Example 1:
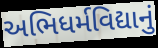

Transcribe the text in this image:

અભિધર્મવિદ્યાનું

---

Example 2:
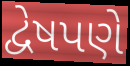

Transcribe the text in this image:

દ્વેષપણે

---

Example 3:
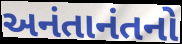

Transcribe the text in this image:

અનંતાનંતનો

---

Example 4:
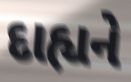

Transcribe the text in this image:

દાહ્યને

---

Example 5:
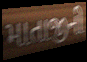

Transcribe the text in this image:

માતાજીની